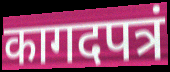
कागदपत्रं